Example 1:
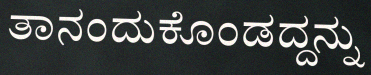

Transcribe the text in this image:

ತಾನಂದುಕೊಂಡದ್ದನ್ನು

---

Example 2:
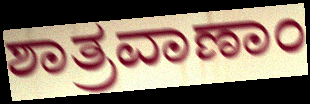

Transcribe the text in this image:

ಶಾತ್ರವಾಣಾಂ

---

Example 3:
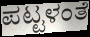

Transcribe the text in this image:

ಪಟ್ಟಳಂತೆ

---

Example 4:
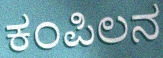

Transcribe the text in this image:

ಕಂಪಿಲನ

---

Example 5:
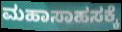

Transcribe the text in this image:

ಮಹಾಸಾಹಸಕ್ಕೆ